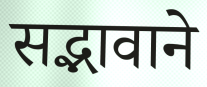
सद्भावाने